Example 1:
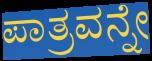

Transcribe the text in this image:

ಪಾತ್ರವನ್ನೇ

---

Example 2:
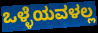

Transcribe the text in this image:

ಒಳ್ಳೆಯವಳಲ್ಲ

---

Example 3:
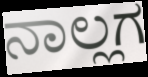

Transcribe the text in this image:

ನಾಲ್ಲಗ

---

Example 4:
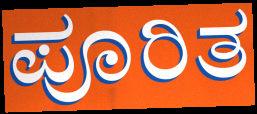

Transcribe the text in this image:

ಪೂರಿತ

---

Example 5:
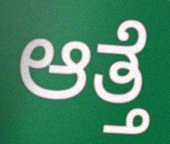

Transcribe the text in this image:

ಆತ್ತೆ